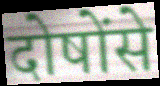
दोषोंसे